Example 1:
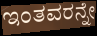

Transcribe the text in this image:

ಇಂತವರನ್ನೇ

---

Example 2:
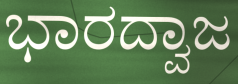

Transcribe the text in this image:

ಭಾರದ್ವಾಜ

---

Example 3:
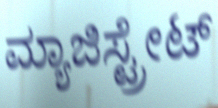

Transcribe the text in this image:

ಮ್ಯಾಜಿಸ್ಟ್ರೇಟ್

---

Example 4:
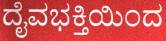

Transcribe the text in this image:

ದೈವಭಕ್ತಿಯಿಂದ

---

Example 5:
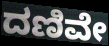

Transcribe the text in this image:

ದಣಿವೇ